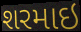
શરમાઇ